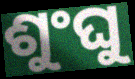
ଶୁଂଘୁ